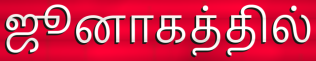
ஜூனாகத்தில்